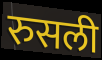
रुसली